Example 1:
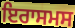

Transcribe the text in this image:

ਇਰਾਸਮਸ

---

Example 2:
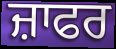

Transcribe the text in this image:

ਜ਼ਾਫਰ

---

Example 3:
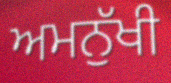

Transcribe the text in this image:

ਅਮਨੁੱਖੀ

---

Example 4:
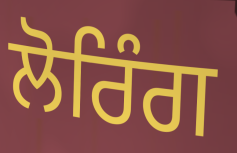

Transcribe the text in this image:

ਲੋਰਿੰਗ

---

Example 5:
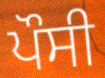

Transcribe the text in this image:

ਪੌਸੀ